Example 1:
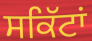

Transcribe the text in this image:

ਸਕਿੱਟਾਂ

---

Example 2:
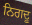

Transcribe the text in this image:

ਨਿਗਦੂ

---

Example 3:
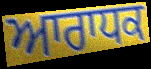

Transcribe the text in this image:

ਆਰਾਧਕ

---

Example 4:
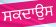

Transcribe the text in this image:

ਸਕਦਾਉਸ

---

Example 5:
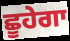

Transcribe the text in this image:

ਛੂਹੇਗਾ